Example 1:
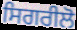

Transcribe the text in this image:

ਸਿਗਰੀਲੋ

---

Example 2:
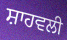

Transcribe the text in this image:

ਸ਼ਾਹਵਲੀ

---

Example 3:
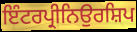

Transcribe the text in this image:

ਇੰਟਰਪ੍ਰੀਨਿਉਰਸ਼ਿਪ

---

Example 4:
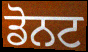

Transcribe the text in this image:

ਡੋਨਟ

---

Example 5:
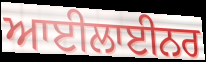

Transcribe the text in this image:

ਆਈਲਾਈਨਰ